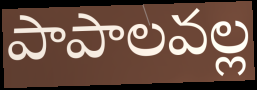
పాపాలవల్ల